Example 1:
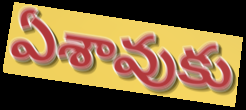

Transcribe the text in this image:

ఏశావుకు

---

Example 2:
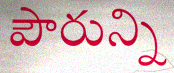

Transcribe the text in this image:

పౌరున్ని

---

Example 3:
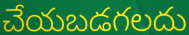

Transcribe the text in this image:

చేయబడగలదు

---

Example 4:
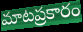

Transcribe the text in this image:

మాటప్రకారం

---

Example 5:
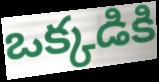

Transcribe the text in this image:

ఒక్కడికి